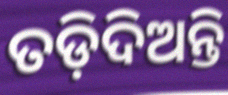
ତଡ଼ିଦିଅନ୍ତି